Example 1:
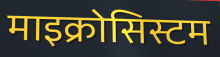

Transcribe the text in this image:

माइक्रोसिस्टम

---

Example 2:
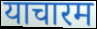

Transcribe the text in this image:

याचारम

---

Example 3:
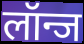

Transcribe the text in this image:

लॉन्ज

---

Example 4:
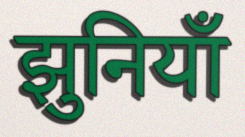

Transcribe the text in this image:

झुनियाँ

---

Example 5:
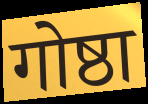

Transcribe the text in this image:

गोष्ठा